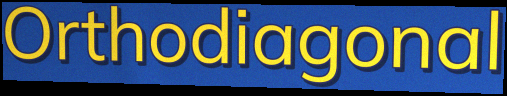
Orthodiagonal